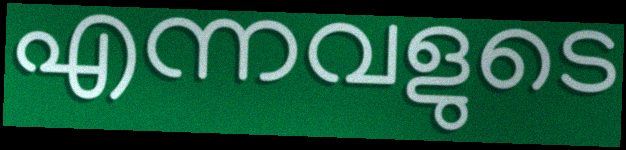
എന്നവളുടെ